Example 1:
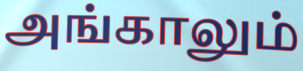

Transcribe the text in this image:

அங்காலும்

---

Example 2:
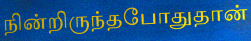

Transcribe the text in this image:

நின்றிருந்தபோதுதான்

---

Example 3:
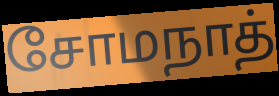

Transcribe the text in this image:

சோமநாத்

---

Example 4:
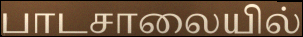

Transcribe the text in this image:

பாடசாலையில்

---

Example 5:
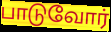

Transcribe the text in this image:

பாடுவோர்